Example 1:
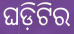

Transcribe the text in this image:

ଘଡ଼ିଟିର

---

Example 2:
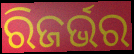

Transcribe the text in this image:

ରିଜର୍ଭର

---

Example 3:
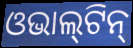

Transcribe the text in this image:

ଓଭାଲ୍‍ଟିନ୍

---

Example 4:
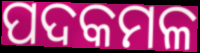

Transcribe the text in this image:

ପଦକମଳ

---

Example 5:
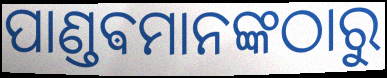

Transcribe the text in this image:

ପାଣ୍ଡଵମାନଙ୍କଠାରୁ